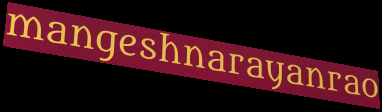
mangeshnarayanrao